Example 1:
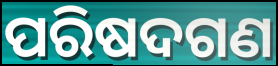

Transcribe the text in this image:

ପରିଷଦଗଣ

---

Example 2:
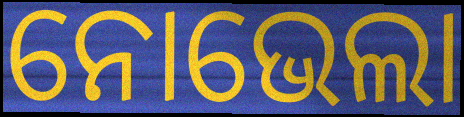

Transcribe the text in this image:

ନୋଭେଲା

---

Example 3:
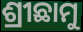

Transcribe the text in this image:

ଶ୍ରୀଛାମୁ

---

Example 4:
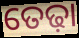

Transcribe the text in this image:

ତେଢ଼ା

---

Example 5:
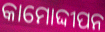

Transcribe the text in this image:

କାମୋଦ୍ଦୀପନ